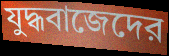
যুদ্ধবাজেদের